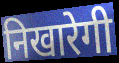
निखारेगी